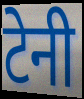
टेनी